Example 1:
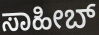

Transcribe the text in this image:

ಸಾಹೀಬ್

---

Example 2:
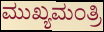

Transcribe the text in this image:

ಮುಖ್ಯಮಂತ್ರಿ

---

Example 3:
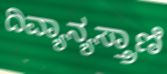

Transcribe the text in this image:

ದಿವ್ಯಾನ್ಯಸ್ತ್ರಾಣಿ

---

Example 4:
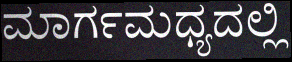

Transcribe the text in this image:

ಮಾರ್ಗಮಧ್ಯದಲ್ಲಿ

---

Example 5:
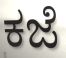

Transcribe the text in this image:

ಕಜೆ